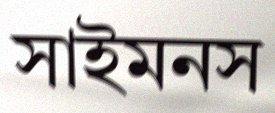
সাইমনস